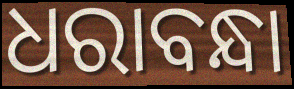
ଧରାବନ୍ଧା